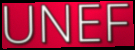
UNEF